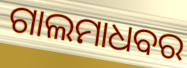
ଗାଲମାଧବର